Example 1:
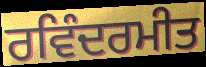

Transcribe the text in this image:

ਰਵਿੰਦਰਮੀਤ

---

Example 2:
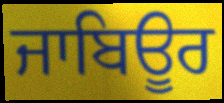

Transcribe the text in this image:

ਜਾਬਿਊਰ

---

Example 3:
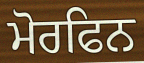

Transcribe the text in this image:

ਮੋਰਫਿਨ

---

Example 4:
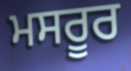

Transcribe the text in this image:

ਮਸਰੂਰ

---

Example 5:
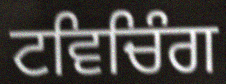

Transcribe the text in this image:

ਟਵਿਚਿੰਗ